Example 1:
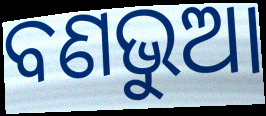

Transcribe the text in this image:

ବଣଭୁଆ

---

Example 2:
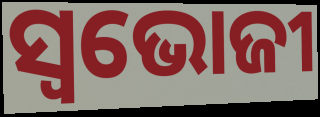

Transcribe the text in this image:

ସ୍ଵଭୋଜୀ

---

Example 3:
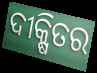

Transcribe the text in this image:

ଦୀକ୍ଷିତର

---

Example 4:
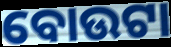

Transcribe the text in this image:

ବୋଉଟା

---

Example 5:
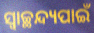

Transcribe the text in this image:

ସ୍ୱାଚ୍ଛନ୍ଦ୍ୟପାଇଁ